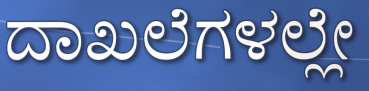
ದಾಖಲೆಗಳಲ್ಲೇ